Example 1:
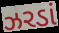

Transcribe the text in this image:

ઝરડાં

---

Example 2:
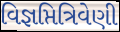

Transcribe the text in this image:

વિજ્ઞપ્તિત્રિવેણી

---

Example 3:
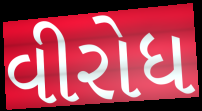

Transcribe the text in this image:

વીરોધ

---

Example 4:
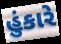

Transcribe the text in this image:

હુંકારે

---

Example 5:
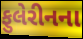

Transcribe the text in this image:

ફુલેરીનના